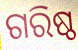
ଗରିଷ୍ଠ